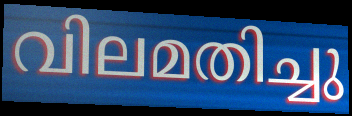
വിലമതിച്ചു